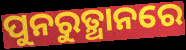
ପୁନରୁତ୍ଥାନରେ